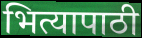
भित्यापाठी